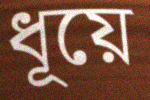
ধূয়ে